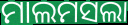
ମାଲମସଲା